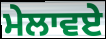
ਮੇਲਾਵਏ